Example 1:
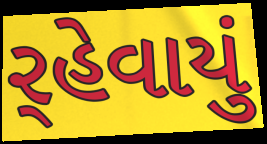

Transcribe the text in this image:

ર્‌હેવાયું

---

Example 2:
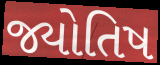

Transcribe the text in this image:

જ્યોતિષ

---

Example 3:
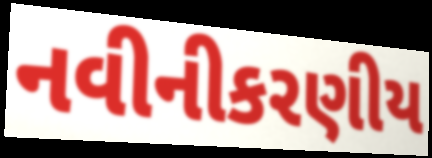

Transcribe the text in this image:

નવીનીકરણીય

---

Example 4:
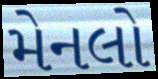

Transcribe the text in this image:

મેનલો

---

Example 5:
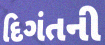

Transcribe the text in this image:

દિગંતની